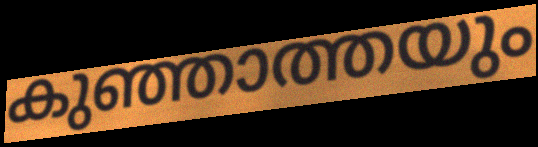
കുഞ്ഞാത്തയും